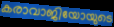
കരാവാജിയോയുടെ